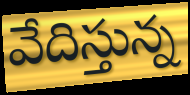
వేదిస్తున్న